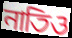
নাতিও